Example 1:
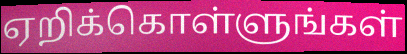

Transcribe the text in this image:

ஏறிக்கொள்ளுங்கள்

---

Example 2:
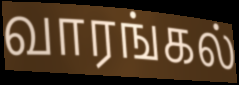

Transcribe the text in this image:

வாரங்கல்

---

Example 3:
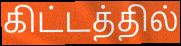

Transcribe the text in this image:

கிட்டத்தில்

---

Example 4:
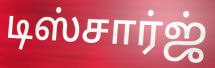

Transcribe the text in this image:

டிஸ்சார்ஜ்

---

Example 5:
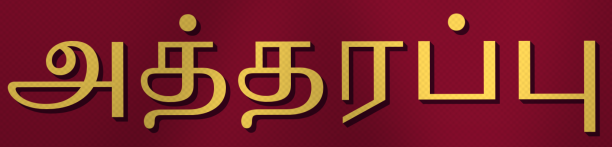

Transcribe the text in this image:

அத்தரப்பு